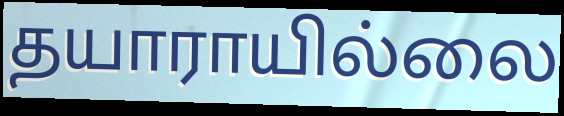
தயாராயில்லை